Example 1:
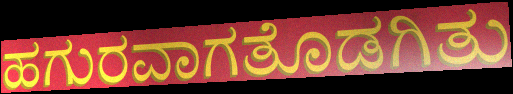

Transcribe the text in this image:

ಹಗುರವಾಗತೊಡಗಿತು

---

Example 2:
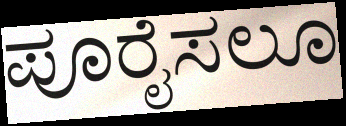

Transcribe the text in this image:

ಪೂರೈಸಲೂ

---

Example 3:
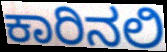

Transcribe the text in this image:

ಕಾರಿನಲಿ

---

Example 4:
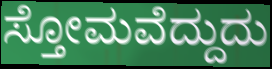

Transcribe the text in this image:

ಸ್ತೋಮವೆದ್ದುದು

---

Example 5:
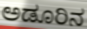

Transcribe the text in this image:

ಅಡೂರಿನ